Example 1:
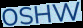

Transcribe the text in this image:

OSHW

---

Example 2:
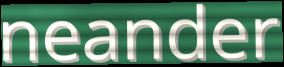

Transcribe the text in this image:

neander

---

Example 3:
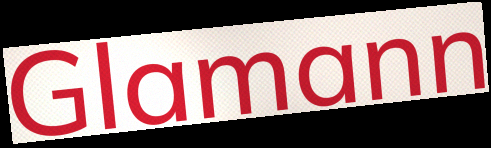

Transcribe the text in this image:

Glamann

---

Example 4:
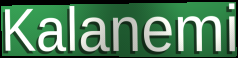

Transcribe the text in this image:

Kalanemi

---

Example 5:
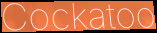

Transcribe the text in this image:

Cockatoo